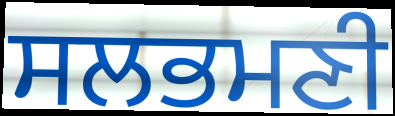
ਸਲਭਮਣੀ